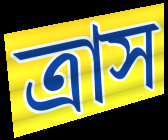
ত্রাস